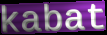
kabat